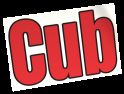
Cub